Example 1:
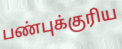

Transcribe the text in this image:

பண்புக்குரிய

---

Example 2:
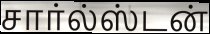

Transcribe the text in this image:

சார்ல்ஸ்டன்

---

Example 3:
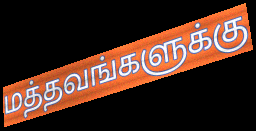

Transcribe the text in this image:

மத்தவங்களுக்கு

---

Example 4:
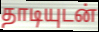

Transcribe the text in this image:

தாடியுடன்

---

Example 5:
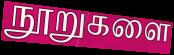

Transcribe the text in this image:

நூறுகளை